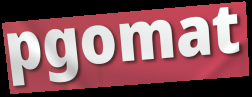
pgomat